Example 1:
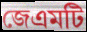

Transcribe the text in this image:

জেএমটি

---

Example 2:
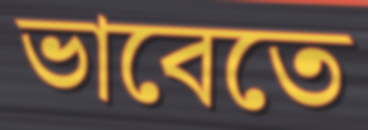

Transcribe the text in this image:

ভাবেতে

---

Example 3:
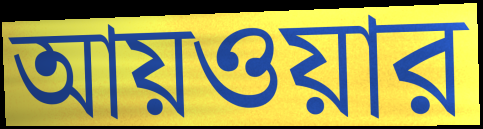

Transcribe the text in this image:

আয়ওয়ার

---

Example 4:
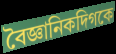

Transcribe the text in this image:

বৈজ্ঞানিকদিগকে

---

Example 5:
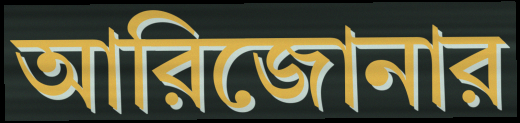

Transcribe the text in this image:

আরিজোনার